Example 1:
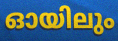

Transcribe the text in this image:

ഓയിലും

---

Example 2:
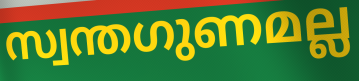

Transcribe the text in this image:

സ്വന്തഗുണമല്ല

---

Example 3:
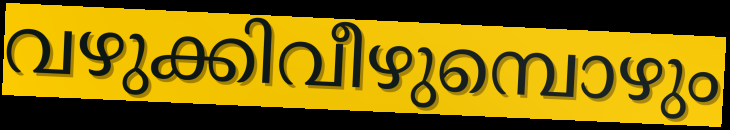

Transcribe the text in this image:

വഴുക്കിവീഴുമ്പൊഴും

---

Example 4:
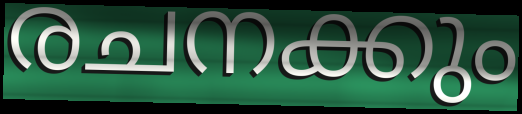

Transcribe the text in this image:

രചനക്കും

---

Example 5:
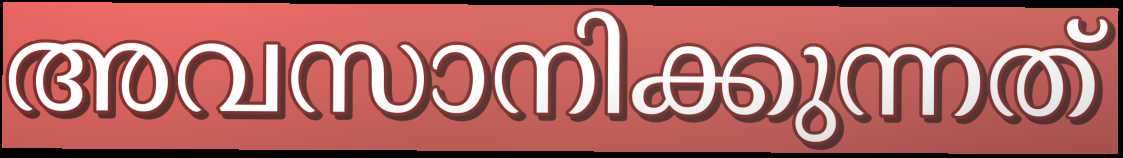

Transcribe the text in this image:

അവസാനിക്കുന്നത്